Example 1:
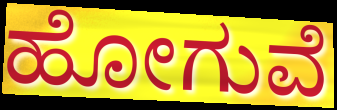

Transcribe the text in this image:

ಹೋಗುವೆ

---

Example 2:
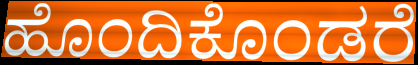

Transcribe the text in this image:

ಹೊಂದಿಕೊಂಡರೆ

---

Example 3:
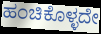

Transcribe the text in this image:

ಹಂಚಿಕೊಳ್ಳದೇ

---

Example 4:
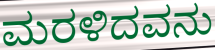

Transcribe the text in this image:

ಮರಳಿದವನು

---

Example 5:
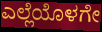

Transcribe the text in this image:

ಎಲ್ಲೆಯೊಳಗೇ